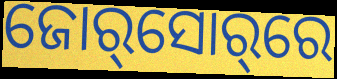
ଜୋର୍‌ସୋର୍‌ରେ